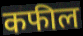
कफील